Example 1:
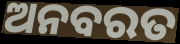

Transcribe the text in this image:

ଅନବରତ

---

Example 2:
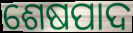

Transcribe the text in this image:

ଶେଷପାଦ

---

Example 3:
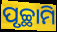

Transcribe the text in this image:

ପୃଚ୍ଛାମି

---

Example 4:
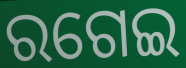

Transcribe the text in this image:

ରଗେଇ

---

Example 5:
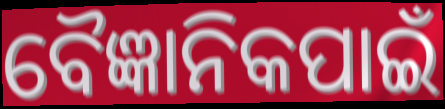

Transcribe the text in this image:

ବୈଜ୍ଞାନିକପାଇଁ